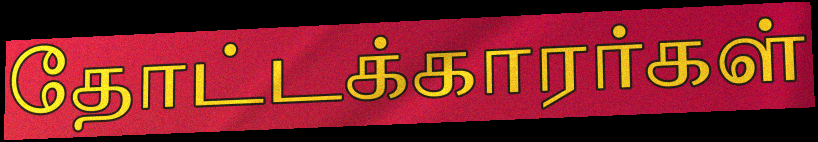
தோட்டக்காரர்கள்